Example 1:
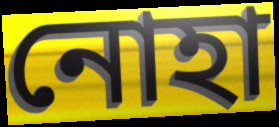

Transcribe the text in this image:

নোহা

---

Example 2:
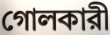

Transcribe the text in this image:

গোলকারী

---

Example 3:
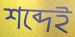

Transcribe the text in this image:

শব্দেই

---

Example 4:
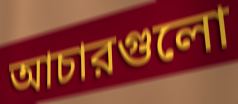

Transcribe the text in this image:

আচারগুলো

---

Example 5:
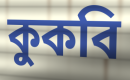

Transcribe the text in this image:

কুকবি